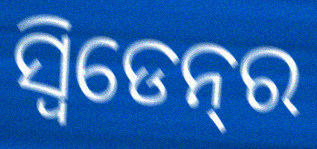
ସ୍ୱିଡେନ୍‍ର